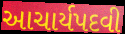
આચાર્યપદવી